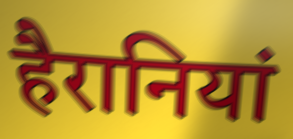
हैरानियां